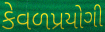
કેવળપ્રયોગી